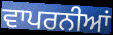
ਵਾਪਰਨੀਆਂ